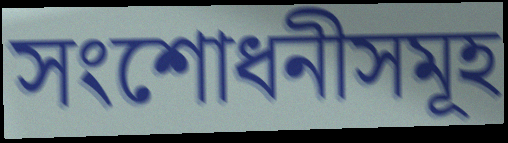
সংশোধনীসমূহ